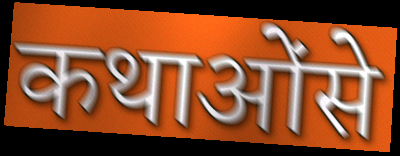
कथाओंसे